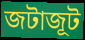
জটাজূট